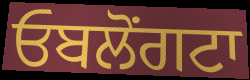
ਓਬਲੋਂਗਟਾ